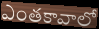
ఎంతకావాలో